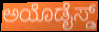
ಅಯೊಡೈಸ್ಡ್